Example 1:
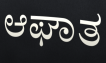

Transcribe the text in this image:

ಆಘಾತ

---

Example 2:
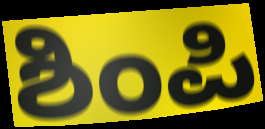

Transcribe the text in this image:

ಶಿಂಪಿ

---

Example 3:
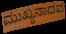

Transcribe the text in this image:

ಮುಖ್ಯನಾದವ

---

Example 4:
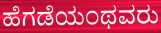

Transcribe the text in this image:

ಹೆಗಡೆಯಂಥವರು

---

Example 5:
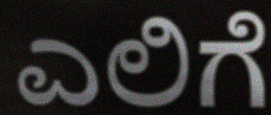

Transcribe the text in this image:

ಎಲಿಗೆ